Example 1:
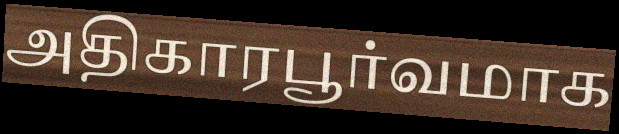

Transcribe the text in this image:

அதிகாரபூர்வமாக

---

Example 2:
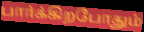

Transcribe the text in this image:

பார்க்கிறபோதும்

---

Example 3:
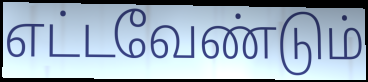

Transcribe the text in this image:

எட்டவேண்டும்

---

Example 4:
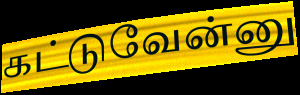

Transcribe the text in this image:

கட்டுவேன்னு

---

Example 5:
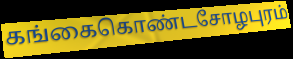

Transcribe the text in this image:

கங்கைகொண்டசோழபுரம்